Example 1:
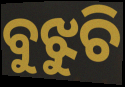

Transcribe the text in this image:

ବୁଝୁଚି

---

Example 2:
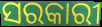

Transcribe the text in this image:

ସରକାରୀ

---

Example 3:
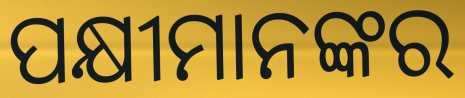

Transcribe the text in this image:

ପକ୍ଷୀମାନଙ୍କର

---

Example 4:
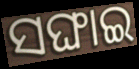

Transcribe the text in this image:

ସଙ୍ଘାଇ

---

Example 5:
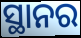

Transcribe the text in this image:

ସ୍ଥାନର